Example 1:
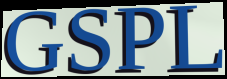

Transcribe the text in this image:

GSPL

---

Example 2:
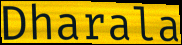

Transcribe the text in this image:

Dharala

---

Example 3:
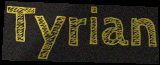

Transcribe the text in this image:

Tyrian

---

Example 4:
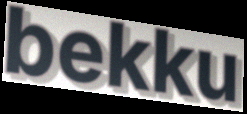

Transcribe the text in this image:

bekku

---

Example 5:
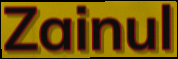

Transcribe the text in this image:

Zainul